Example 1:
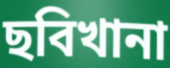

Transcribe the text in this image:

ছবিখানা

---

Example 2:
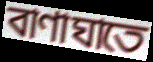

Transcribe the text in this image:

বাণাঘাতে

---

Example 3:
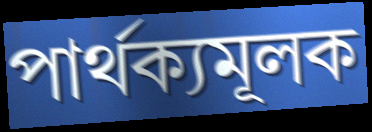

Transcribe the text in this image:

পার্থক্যমূলক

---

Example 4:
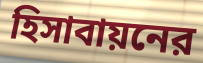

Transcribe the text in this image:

হিসাবায়নের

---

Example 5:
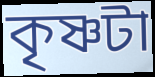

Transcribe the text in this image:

কৃষ্ণটা